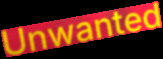
Unwanted